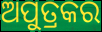
ଅପୁତ୍ରକର